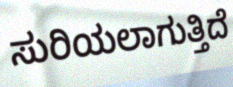
ಸುರಿಯಲಾಗುತ್ತಿದೆ